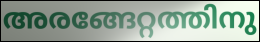
അരങ്ങേറ്റത്തിനു